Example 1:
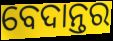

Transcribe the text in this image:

ବେଦାନ୍ତର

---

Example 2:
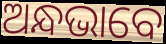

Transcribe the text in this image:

ଅନ୍ଧଭାବେ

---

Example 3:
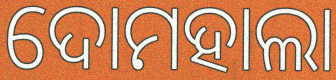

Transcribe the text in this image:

ଦୋମହାଲା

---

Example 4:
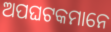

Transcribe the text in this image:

ଅପଘଟକମାନେ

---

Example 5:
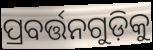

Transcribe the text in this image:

ପ୍ରବର୍ତ୍ତନଗୁଡ଼ିକୁ